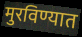
मुरविण्यात